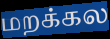
மறக்கல